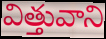
విత్తువాని